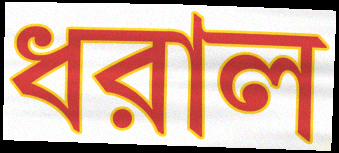
ধরাল